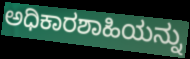
ಅಧಿಕಾರಶಾಹಿಯನ್ನು